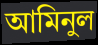
আমিনুল